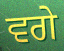
ਵਗੇ